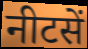
नीटसें